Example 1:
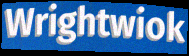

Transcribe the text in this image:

Wrightwiok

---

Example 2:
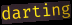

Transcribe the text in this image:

darting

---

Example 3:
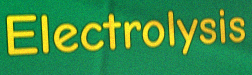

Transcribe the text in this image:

Electrolysis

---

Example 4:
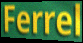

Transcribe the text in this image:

Ferrel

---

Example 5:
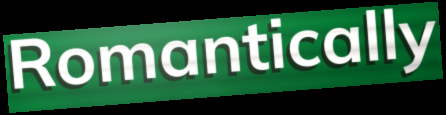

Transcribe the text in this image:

Romantically